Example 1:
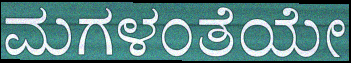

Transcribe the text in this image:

ಮಗಳಂತೆಯೇ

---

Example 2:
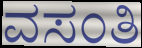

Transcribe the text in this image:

ವಸಂತಿ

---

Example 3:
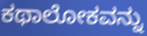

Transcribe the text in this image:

ಕಥಾಲೋಕವನ್ನು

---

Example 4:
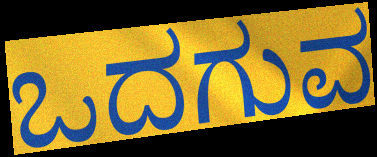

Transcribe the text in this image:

ಒದಗುವ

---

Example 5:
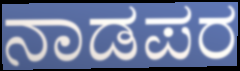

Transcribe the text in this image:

ನಾಡಪರ